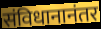
संविधानानंतर